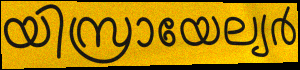
യിസ്രായേല്യർ